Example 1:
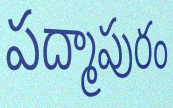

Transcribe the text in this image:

పద్మాపురం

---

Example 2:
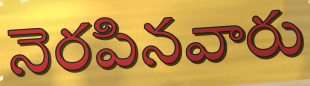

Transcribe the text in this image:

నెరపినవారు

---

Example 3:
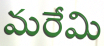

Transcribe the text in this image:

మరేమి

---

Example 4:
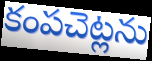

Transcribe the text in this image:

కంపచెట్లను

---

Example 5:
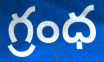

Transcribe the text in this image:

గ్రంధ